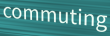
commuting